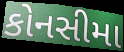
કોનસીમા